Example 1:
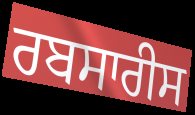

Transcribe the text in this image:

ਰਬਸਾਰੀਸ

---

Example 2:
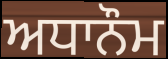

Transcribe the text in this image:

ਅਧਾਨੌਮ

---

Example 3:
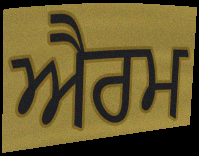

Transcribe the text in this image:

ਐਰਮ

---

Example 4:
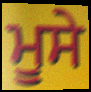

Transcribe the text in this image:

ਮੂਸੇ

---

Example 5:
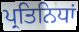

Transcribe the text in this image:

ਪ੍ਰਤਿਨਿਧਾਂ